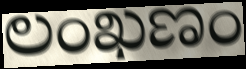
లంఖణం